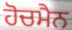
ਹੋਚਮੈਨ